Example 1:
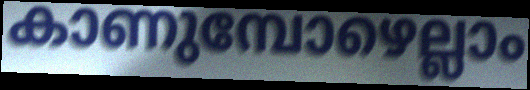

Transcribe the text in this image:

കാണുമ്പോഴെല്ലാം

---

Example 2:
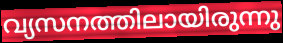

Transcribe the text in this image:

വ്യസനത്തിലായിരുന്നു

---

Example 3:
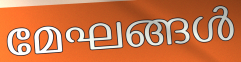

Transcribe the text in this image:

മേഘങ്ങൾ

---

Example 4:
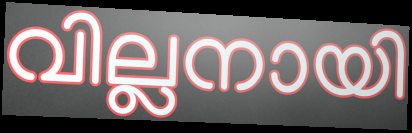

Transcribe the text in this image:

വില്ലനായി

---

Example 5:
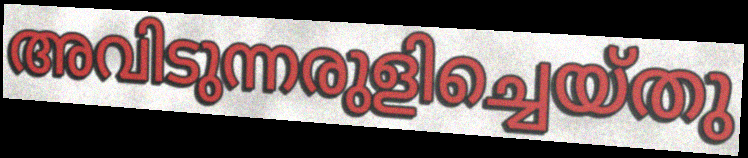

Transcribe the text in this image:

അവിടുന്നരുളിച്ചെയ്തു